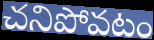
చనిపోవటం